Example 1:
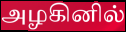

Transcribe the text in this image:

அழகினில்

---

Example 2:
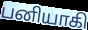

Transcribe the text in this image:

பனியாகி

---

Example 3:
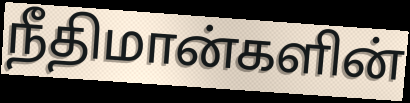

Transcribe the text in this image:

நீதிமான்களின்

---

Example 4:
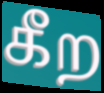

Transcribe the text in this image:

கீற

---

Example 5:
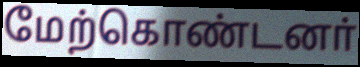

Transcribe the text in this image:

மேற்கொண்டனர்